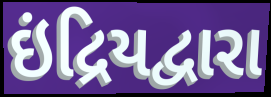
ઇંદ્રિયદ્વારા